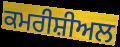
ਕਮਰੀਸ਼ੀਅਲ